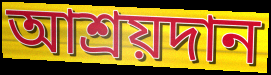
আশ্রয়দান